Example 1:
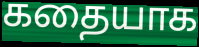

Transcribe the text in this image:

கதையாக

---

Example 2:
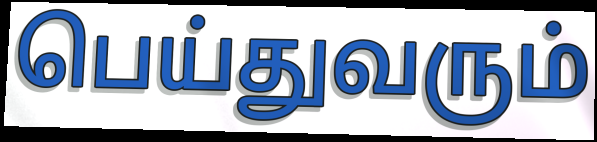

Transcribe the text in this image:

பெய்துவரும்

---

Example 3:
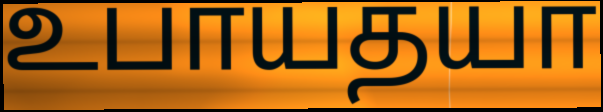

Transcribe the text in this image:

உபாயதயா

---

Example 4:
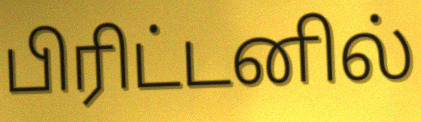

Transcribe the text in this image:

பிரிட்டனில்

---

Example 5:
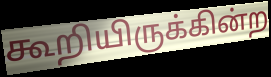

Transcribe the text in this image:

கூறியிருக்கின்ற